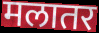
मलातर